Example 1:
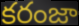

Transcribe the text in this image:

కరంజా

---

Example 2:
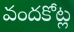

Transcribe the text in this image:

వందకోట్ల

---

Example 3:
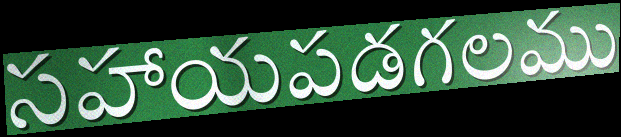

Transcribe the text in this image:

సహాయపడగలము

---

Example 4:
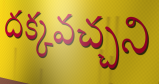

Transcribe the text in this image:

దక్కవచ్చని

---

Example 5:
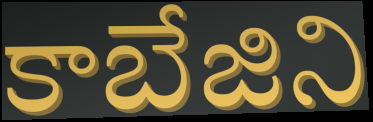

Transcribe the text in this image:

కాబేజిని